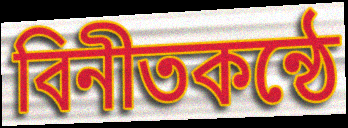
বিনীতকন্ঠে